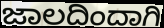
ಜಾಲದಿಂದಾಗಿ